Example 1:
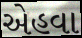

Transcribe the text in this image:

એહવા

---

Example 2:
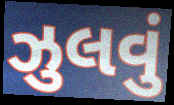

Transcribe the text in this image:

ઝુલવું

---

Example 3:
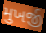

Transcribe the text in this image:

મુખર્જી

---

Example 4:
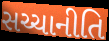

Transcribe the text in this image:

સચ્ચાનીતિ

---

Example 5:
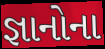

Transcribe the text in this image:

જ્ઞાનોના